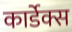
कार्डेक्स